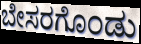
ಬೇಸರಗೊಂಡು